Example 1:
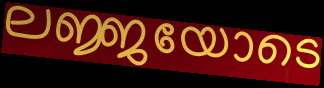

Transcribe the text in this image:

ലജ്ജയോടെ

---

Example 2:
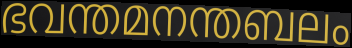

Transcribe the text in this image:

ഭവന്തമനന്തബലം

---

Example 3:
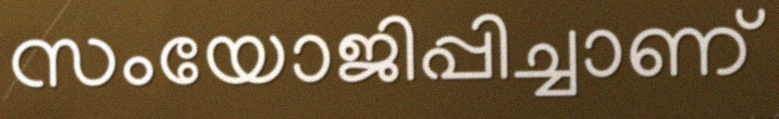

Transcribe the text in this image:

സംയോജിപ്പിച്ചാണ്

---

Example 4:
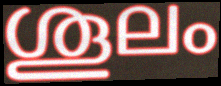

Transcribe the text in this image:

ശൂലം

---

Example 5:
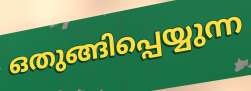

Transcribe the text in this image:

ഒതുങ്ങിപ്പെയ്യുന്ന